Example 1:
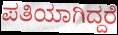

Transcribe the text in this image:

ಪತಿಯಾಗಿದ್ದರೆ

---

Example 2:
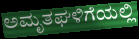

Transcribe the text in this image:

ಅಮೃತಘಳಿಗೆಯಲ್ಲಿ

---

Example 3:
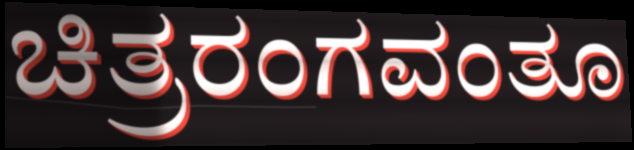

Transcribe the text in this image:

ಚಿತ್ರರಂಗವಂತೂ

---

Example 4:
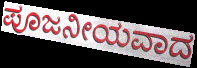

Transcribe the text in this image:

ಪೂಜನೀಯವಾದ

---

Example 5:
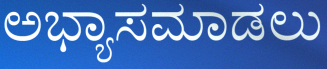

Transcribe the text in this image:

ಅಭ್ಯಾಸಮಾಡಲು